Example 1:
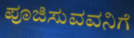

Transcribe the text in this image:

ಪೂಜಿಸುವವನಿಗೆ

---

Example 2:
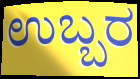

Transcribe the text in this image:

ಉಬ್ಬರ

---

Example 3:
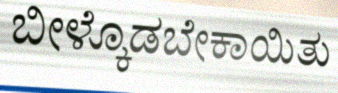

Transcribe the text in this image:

ಬೀಳ್ಕೊಡಬೇಕಾಯಿತು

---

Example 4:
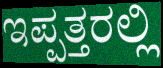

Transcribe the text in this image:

ಇಪ್ಪತ್ತರಲ್ಲಿ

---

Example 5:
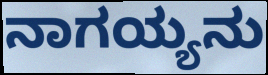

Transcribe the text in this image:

ನಾಗಯ್ಯನು